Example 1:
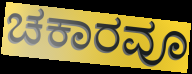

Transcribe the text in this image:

ಚಕಾರವೂ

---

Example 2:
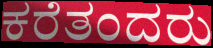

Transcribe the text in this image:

ಕರೆತಂದರು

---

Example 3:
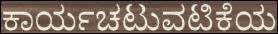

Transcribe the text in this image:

ಕಾರ್ಯಚಟುವಟಿಕೆಯ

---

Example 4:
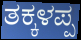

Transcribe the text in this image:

ತಕ್ಕಳಪ್ಪ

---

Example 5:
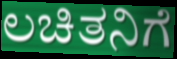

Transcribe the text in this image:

ಲಚಿತನಿಗೆ